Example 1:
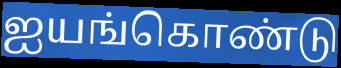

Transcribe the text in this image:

ஐயங்கொண்டு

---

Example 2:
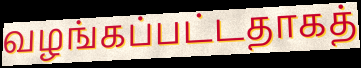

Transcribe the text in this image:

வழங்கப்பட்டதாகத்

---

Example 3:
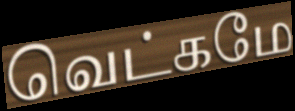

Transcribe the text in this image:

வெட்கமே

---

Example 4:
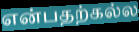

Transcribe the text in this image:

என்பதற்கல்ல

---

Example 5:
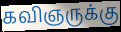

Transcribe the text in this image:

கவிஞருக்கு